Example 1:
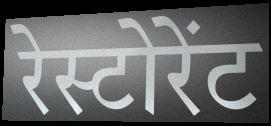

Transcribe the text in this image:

रेस्‍टोरेंट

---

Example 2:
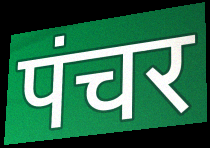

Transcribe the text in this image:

पंचर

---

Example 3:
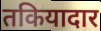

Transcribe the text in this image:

तकियादार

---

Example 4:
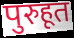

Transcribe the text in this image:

पुरुहूत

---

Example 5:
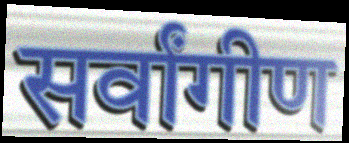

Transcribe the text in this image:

सर्वांगीण